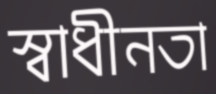
স্বাধীনতা